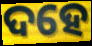
ଦହେ